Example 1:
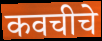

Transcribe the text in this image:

कवचीचे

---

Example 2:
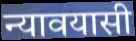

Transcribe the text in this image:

न्यावयासी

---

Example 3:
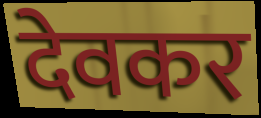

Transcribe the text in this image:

देवकर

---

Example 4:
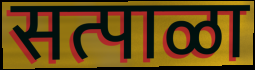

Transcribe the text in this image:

सत्पाळा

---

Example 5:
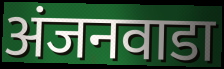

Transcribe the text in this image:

अंजनवाडा